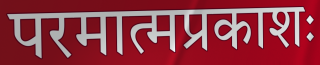
परमात्मप्रकाशः